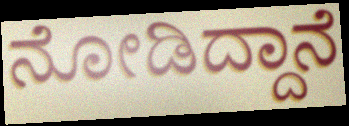
ನೋಡಿದ್ದಾನೆ